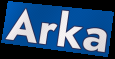
Arka